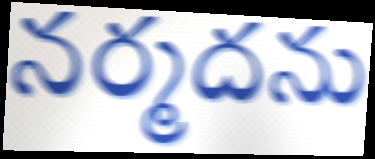
నర్మదను